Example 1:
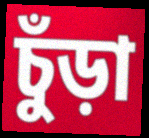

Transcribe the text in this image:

চুঁড়া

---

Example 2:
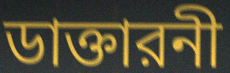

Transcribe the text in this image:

ডাক্তারনী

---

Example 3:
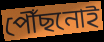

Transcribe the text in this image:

পৌঁছনোই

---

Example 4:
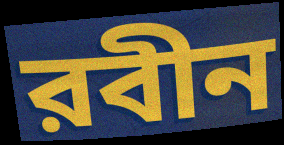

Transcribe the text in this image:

রবীন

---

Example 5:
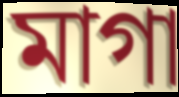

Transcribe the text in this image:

মাগা